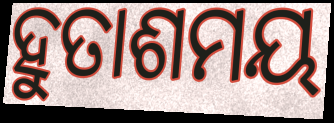
ହୁତାଶମୟ